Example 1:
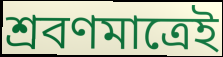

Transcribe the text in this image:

শ্রবণমাত্রেই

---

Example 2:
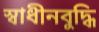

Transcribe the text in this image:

স্বাধীনবুদ্ধি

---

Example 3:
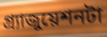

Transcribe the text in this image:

গ্র্যাজুয়েশনটা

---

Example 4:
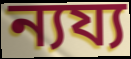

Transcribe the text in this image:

ন্যয্য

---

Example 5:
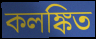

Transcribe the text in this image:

কলঙ্কিত